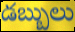
డబ్బులు